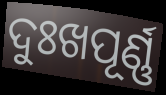
ଦୁଃଖପୂର୍ଣ୍ଣ